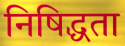
निषिद्धता